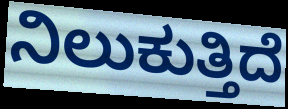
ನಿಲುಕುತ್ತಿದೆ